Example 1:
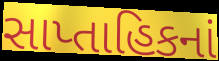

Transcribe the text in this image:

સાપ્તાહિકનાં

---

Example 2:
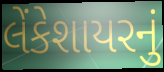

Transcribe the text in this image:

લેંકેશાયરનું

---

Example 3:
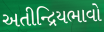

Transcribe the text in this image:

અતીન્દ્રિયભાવો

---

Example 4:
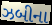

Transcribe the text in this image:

ઝબીના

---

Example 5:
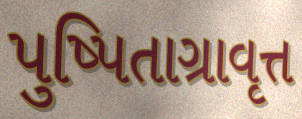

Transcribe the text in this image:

પુષ્પિતાગ્રાવૃત્ત